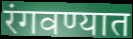
रंगवण्यात